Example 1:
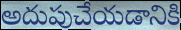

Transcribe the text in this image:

అదుపుచేయడానికి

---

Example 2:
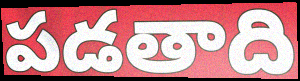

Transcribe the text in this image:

పడతాది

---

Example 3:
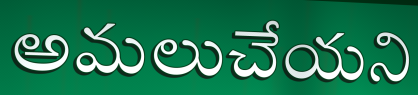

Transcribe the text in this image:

అమలుచేయని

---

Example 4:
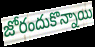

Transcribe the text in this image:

జోరందుకొన్నాయి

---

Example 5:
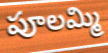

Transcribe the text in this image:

పూలమ్మి